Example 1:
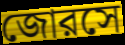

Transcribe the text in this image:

জোরসে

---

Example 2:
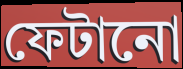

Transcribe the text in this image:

ফেটানো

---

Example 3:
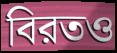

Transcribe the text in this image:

বিরতও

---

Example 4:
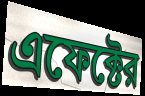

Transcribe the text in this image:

এফেক্টের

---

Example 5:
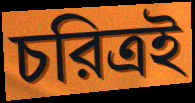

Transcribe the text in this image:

চরিত্রই